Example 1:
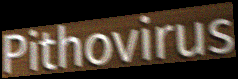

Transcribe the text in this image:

Pithovirus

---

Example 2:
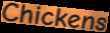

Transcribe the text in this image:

Chickens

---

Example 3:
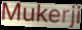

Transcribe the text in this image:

Mukerji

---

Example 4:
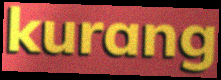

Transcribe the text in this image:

kurang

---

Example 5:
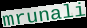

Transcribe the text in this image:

mrunali